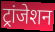
ट्रांजेशन